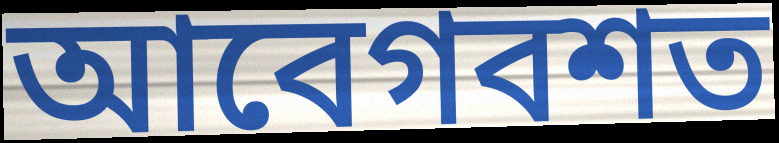
আবেগবশত